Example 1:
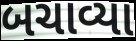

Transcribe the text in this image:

બચાવ્યા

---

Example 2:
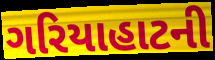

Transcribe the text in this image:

ગરિયાહાટની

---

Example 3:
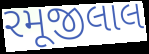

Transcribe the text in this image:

રમૂજીલાલ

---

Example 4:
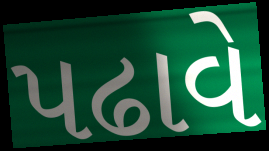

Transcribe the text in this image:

પઢાવે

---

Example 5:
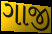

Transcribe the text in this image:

ગાજી